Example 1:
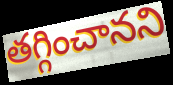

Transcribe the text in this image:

తగ్గించానని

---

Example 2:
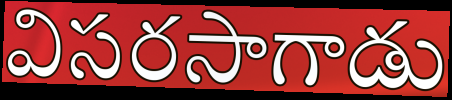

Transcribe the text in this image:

విసరసాగాడు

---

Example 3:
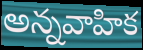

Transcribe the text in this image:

అన్నవాహిక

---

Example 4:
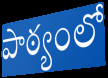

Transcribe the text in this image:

పాఠ్యంలో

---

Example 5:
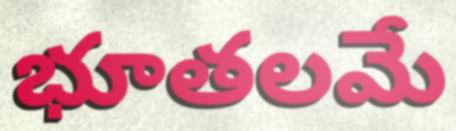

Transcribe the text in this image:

భూతలమే